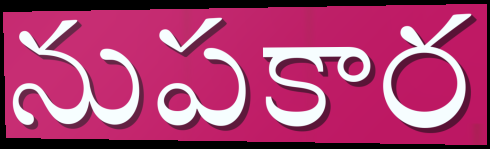
నుపకార